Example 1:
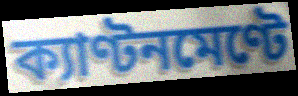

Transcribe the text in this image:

ক্যাণ্টনমেণ্টে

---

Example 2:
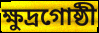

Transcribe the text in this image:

ক্ষুদ্রগোষ্ঠী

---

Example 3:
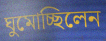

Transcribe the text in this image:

ঘুমোচ্ছিলেন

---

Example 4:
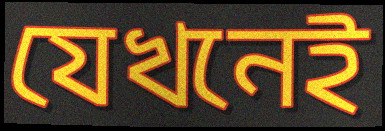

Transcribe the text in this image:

যেখনেই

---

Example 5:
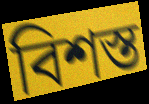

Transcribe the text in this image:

বিশস্ত